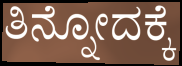
ತಿನ್ನೋದಕ್ಕೆ